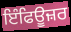
ਇੰਫਿਊਜ਼ਰ